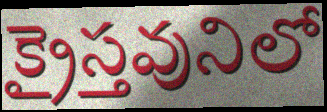
క్రైస్తవునిలో